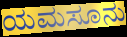
ಯಮಸೂನು